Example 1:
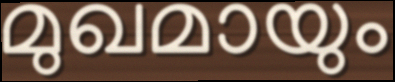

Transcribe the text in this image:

മുഖമായും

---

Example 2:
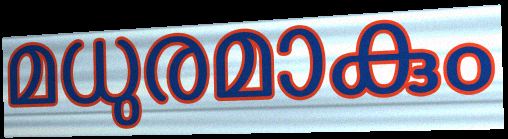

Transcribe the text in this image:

മധുരമാകും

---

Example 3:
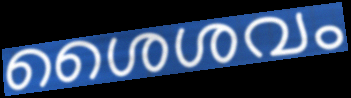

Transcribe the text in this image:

ശൈശവം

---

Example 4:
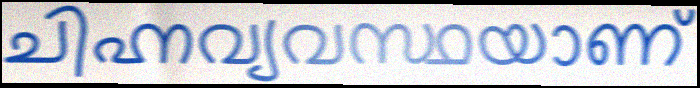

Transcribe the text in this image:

ചിഹ്നവ്യവസ്ഥയാണ്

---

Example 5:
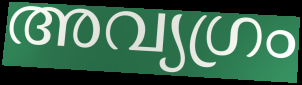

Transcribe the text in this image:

അവ്യഗ്രം